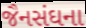
જૈનસંઘના